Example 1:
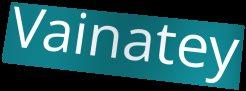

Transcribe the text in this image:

Vainatey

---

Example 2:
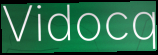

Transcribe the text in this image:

Vidocq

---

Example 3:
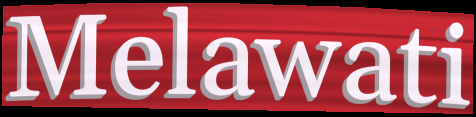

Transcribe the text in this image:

Melawati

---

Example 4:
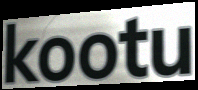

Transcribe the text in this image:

kootu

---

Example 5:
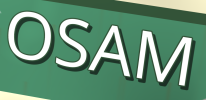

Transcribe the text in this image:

OSAM